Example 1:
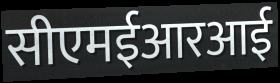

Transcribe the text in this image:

सीएमईआरआई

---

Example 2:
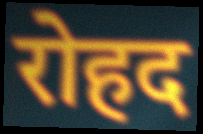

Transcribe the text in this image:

रोहद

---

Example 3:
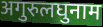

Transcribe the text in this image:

अगुरुलघुनाम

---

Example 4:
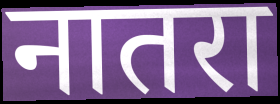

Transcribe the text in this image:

नातरा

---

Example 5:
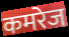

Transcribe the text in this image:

कमरेज